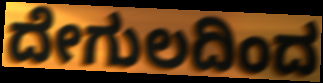
ದೇಗುಲದಿಂದ